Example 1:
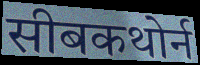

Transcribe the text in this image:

सीबकथोर्न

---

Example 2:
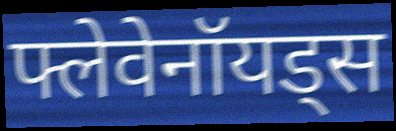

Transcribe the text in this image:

फ्लेवेनॉयड्स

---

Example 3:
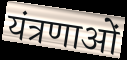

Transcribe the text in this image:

यंत्रणाओं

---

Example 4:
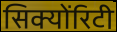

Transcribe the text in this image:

सिक्योंरिटी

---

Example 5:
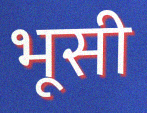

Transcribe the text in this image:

भूसी